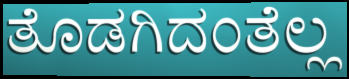
ತೊಡಗಿದಂತೆಲ್ಲ